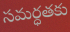
సమర్ధతకు